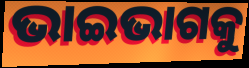
ଭାଇଭାଗକୁ